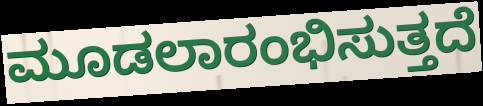
ಮೂಡಲಾರಂಭಿಸುತ್ತದೆ